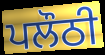
ਪਲੌਠੀ